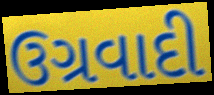
ઉગ્રવાદી